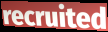
recruited